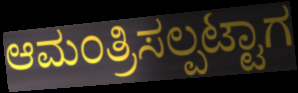
ಆಮಂತ್ರಿಸಲ್ಪಟ್ಟಾಗ